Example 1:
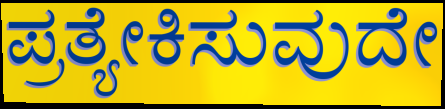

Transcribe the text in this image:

ಪ್ರತ್ಯೇಕಿಸುವುದೇ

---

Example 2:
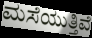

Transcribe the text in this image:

ಮಸೆಯುತ್ತಿವೆ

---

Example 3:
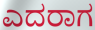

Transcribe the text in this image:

ಎದರಾಗ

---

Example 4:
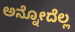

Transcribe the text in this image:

ಅನ್ನೋದೆಲ್ಲ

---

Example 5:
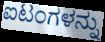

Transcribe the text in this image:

ಐಟಂಗಳನ್ನು